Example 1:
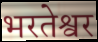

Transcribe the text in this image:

भरतेश्वर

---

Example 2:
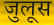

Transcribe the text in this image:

जुलूस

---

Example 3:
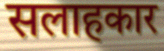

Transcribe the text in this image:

सलाहकार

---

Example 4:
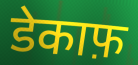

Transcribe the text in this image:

डेकाफ़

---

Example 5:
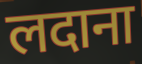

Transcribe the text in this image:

लदाना